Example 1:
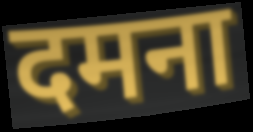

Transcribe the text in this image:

दमना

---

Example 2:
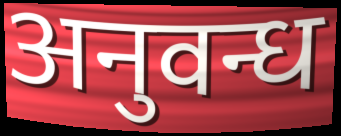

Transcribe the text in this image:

अनुवन्ध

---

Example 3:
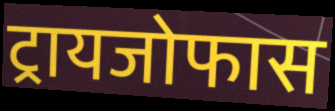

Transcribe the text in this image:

ट्रायजोफास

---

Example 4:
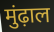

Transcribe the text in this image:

मुंढ़ाल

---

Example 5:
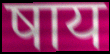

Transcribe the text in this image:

षाय